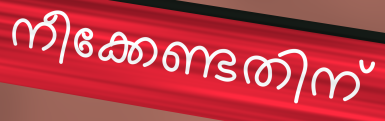
നീക്കേണ്ടതിന്